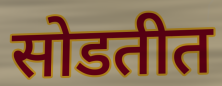
सोडतीत